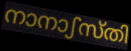
നാനാഽസ്തി